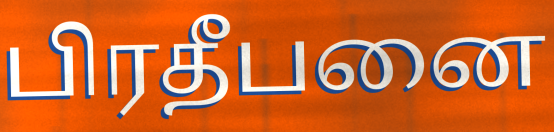
பிரதீபனை